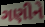
ગણીને